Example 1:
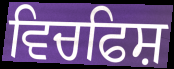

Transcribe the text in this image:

ਵਿਚਫਿਸ਼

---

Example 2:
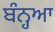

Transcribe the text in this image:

ਬੰਨ੍ਹਆ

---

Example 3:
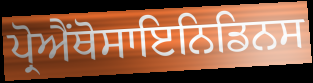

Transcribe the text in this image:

ਪ੍ਰੋਐਂਥੋਸਾਇਨਿਡਿਨਸ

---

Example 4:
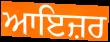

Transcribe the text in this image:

ਆਇਜ਼ਰ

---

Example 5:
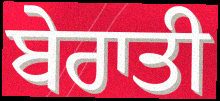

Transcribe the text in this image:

ਬੇਰਾਤੀ